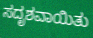
ಸದೃಶವಾಯಿತು